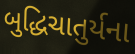
બુદ્ધિચાતુર્યના